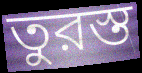
তুরস্ত